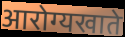
आरोग्यखाते